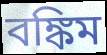
বঙ্কিম